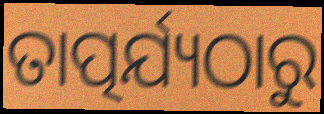
ତାତ୍ପର୍ଯ୍ୟଠାରୁ